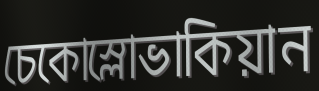
চেকোস্লোভাকিয়ান